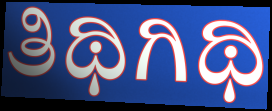
ತಿಥಿಗಿಥಿ